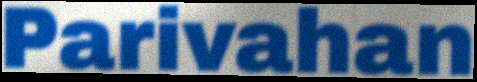
Parivahan